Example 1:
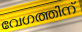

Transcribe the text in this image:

വേഗത്തിന്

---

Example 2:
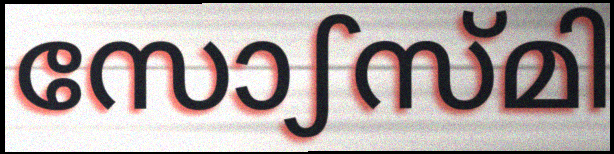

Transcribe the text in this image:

സോഽസ്മി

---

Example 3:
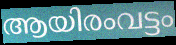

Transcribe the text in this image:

ആയിരംവട്ടം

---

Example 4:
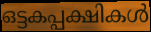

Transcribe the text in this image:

ഒട്ടകപ്പക്ഷികൾ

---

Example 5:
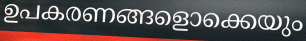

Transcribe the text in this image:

ഉപകരണങ്ങളൊക്കെയും